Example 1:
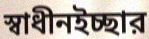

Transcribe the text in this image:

স্বাধীনইচ্ছার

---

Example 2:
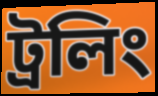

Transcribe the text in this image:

ট্রলিং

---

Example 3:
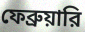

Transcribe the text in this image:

ফেব্রুয়ারি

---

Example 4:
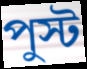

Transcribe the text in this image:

পুস্ট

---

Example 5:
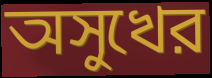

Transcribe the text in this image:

অসুখের